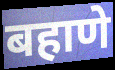
बहाणे